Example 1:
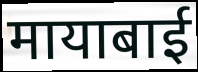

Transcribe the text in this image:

मायाबाई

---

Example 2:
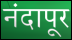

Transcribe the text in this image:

नंदापूर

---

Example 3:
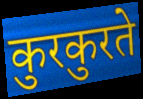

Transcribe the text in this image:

कुरकुरते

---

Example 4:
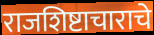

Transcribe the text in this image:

राजशिष्टाचाराचे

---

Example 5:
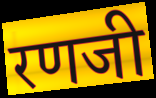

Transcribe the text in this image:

रणजी